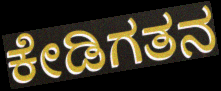
ಕೇಡಿಗತನ